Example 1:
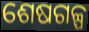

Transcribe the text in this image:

ଶେଷଗଳ୍ପ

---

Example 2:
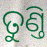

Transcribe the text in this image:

ତୁଣ୍ତି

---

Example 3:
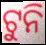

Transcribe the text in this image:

ଟୁନି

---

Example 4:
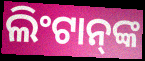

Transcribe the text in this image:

ଲିଂଟାନ୍‍ଙ୍କ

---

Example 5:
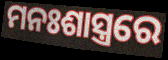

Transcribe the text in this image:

ମନଃଶାସ୍ତ୍ରରେ